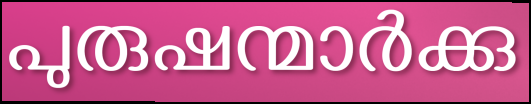
പുരുഷന്മാർക്കു